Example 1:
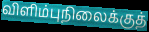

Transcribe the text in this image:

விளிம்புநிலைக்குத்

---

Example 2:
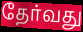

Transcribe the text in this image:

தேர்வது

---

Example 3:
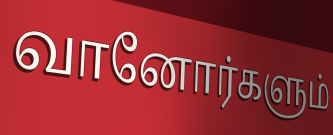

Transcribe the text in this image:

வானோர்களும்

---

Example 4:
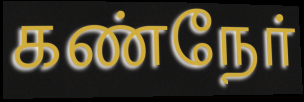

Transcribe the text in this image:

கண்நேர்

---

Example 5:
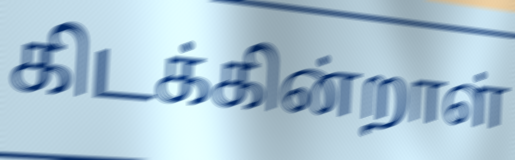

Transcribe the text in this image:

கிடக்கின்றாள்